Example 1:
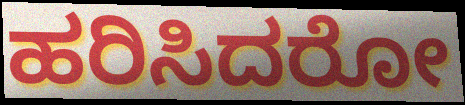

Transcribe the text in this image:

ಹರಿಸಿದರೋ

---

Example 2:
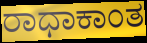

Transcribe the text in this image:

ರಾಧಾಕಾಂತ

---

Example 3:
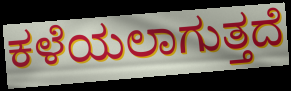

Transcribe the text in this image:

ಕಳೆಯಲಾಗುತ್ತದೆ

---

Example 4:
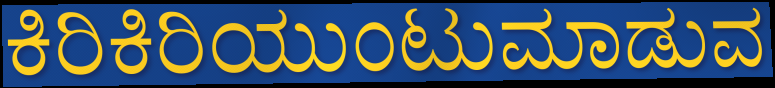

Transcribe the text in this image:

ಕಿರಿಕಿರಿಯುಂಟುಮಾಡುವ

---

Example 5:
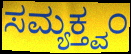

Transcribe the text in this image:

ಸಮ್ಯಕ್ತ್ವಂ